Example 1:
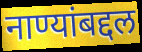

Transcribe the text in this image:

नाण्यांबद्दल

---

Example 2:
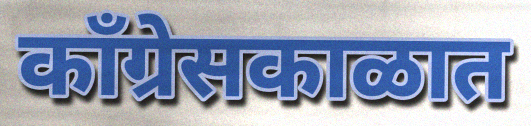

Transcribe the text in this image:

काँग्रेसकाळात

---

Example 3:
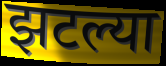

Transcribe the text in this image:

झटल्या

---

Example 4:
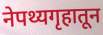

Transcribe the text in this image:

नेपथ्यगृहातून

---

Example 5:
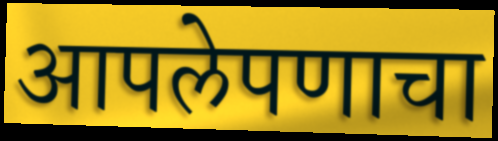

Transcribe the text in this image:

आपलेपणाचा